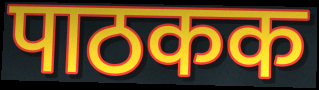
पाठकक